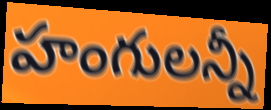
హంగులన్నీ